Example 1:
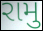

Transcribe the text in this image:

રામુ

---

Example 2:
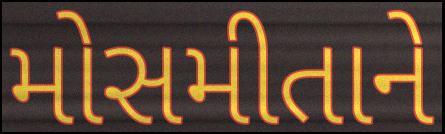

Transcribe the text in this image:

મોસમીતાને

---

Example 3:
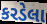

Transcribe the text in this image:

કરડેલા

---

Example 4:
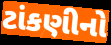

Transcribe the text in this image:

ટાંકણીનો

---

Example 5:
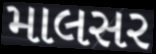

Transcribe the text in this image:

માલસર